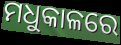
ମଧୁକାଳରେ